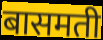
बासमती